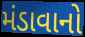
મંડાવાનો